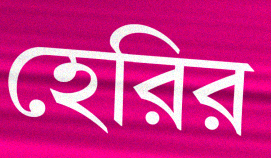
হেরির